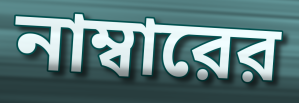
নাম্বারের